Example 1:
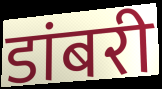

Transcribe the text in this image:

डांबरी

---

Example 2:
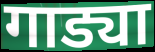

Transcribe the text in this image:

गाड्या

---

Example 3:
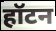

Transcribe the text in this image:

हॉटन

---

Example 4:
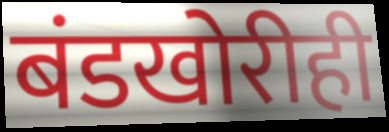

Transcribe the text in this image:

बंडखोरीही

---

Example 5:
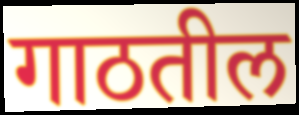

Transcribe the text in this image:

गाठतील